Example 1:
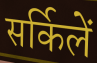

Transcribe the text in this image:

सर्किलें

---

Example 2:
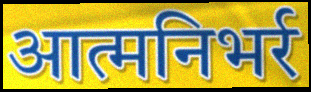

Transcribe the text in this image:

आत्मनिभर्र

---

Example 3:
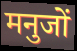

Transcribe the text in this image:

मनुजों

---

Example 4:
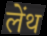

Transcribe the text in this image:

लेंथ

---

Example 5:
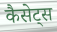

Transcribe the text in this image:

कैसेट्स